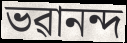
ভৱানন্দ